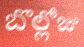
బొల్లోజు